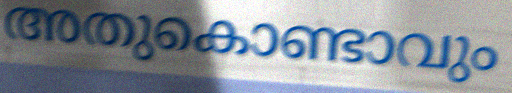
അതുകൊണ്ടാവും